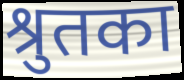
श्रुतका